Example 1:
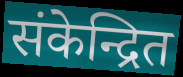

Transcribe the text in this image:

संकेन्द्रित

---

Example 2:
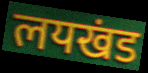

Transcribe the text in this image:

लयखंड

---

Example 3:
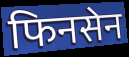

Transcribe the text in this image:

फिनसेन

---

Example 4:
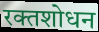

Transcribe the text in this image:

रक्तशोधन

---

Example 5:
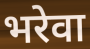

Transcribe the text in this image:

भरेवा